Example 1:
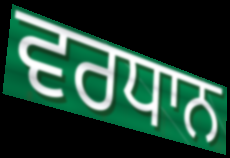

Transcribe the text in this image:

ਵਰਧਾਨ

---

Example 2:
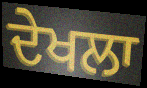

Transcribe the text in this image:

ਦੇਖਲਾ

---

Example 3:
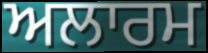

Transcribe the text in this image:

ਅਲਾਰਮ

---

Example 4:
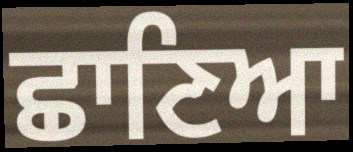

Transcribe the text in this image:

ਛਾਣਿਆ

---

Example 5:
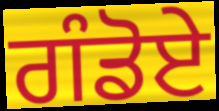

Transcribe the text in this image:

ਗੰਡੋਏ